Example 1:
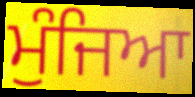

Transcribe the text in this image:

ਮੁੰਜਿਆ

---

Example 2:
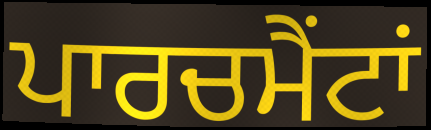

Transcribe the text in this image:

ਪਾਰਚਮੈਂਟਾਂ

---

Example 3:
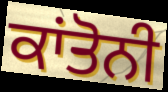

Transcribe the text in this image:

ਕਾਂਤੋਨੀ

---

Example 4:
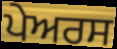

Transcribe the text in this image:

ਪੇਅਰਸ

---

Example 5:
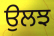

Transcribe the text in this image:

ਉਲਝ